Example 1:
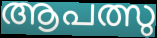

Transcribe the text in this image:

ആപത്സു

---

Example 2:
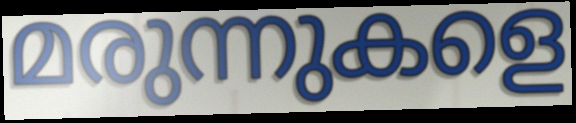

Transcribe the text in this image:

മരുന്നുകളെ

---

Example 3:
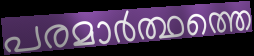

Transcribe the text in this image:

പരമാർത്ഥത്തെ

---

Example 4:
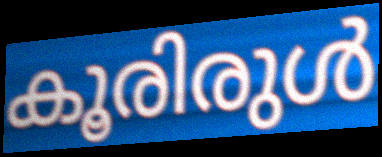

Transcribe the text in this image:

കൂരിരുൾ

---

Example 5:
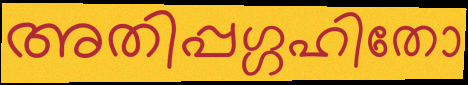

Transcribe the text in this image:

അതിപ്പഗ്ഗഹിതോ